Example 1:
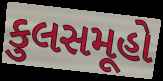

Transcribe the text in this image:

કુલસમૂહો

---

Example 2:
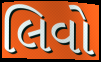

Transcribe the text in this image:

લિવો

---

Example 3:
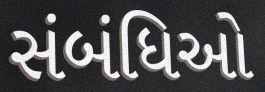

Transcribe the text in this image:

સંબંધિઓ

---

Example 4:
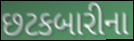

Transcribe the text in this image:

છટકબારીના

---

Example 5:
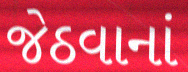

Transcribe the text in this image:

જેઠવાનાં